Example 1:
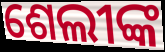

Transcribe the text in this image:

ଶେଲୀଙ୍କ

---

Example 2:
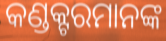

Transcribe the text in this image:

କଣ୍ଡକ୍ଟରମାନଙ୍କ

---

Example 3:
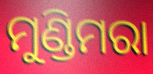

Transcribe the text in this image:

ମୁଣ୍ଡିମରା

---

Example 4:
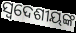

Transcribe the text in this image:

ସ୍ଵଦେଶୀୟଙ୍କ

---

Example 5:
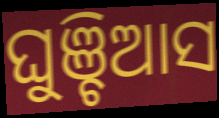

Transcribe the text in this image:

ଘୁଞ୍ଚିଆସ